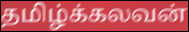
தமிழ்க்கலவன்